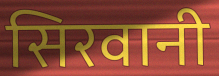
सिरवानी